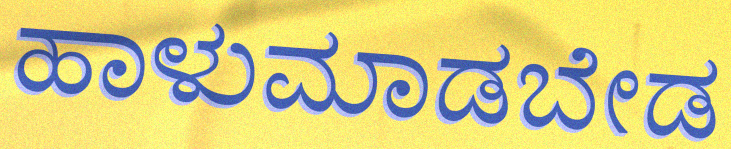
ಹಾಳುಮಾಡಬೇಡ